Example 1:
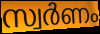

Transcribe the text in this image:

സ്വർണം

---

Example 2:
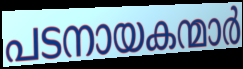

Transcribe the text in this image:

പടനായകന്മാർ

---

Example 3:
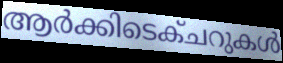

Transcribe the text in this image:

ആർക്കിടെക്ചറുകൾ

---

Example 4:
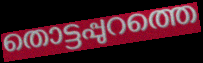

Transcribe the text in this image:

തൊട്ടപ്പുറത്തെ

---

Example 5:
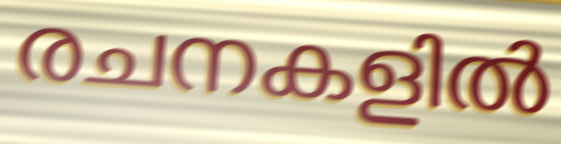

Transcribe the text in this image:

രചനകളിൽ